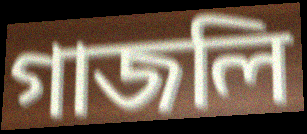
গাজলি